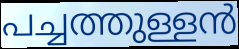
പച്ചത്തുള്ളൻ